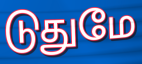
டுதுமே